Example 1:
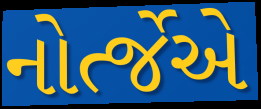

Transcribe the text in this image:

નોર્ત્જેએ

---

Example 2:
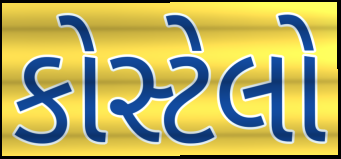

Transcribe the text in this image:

કોસ્ટેલો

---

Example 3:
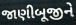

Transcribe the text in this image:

જાણીબૂજીને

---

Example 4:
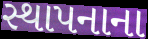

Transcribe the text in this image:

સ્થાપનાના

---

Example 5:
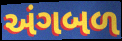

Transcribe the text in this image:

અંગબળ